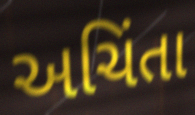
અચિંતા